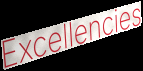
Excellencies